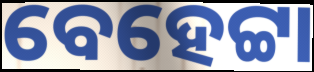
ବେହେଟ୍ଟା